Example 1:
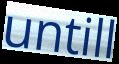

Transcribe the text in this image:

untill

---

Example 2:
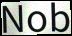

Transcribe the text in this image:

Nob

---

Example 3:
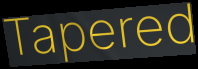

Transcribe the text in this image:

Tapered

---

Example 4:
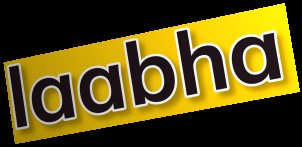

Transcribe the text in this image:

laabha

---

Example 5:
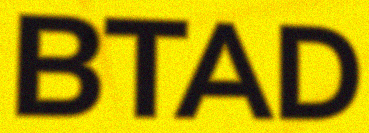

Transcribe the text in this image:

BTAD